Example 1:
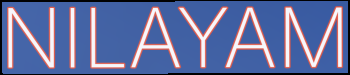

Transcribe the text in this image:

NILAYAM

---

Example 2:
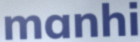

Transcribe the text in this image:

manhi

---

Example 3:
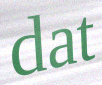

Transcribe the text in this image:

dat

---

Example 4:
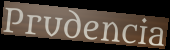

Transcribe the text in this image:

Prudencia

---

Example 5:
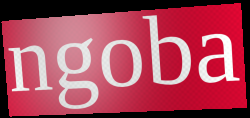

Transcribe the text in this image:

ngoba